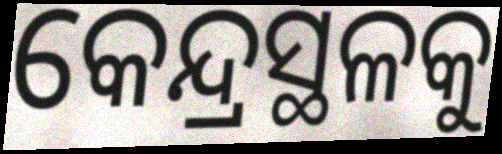
କେନ୍ଦ୍ରସ୍ଥଳକୁ